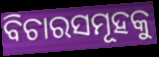
ବିଚାରସମୂହକୁ